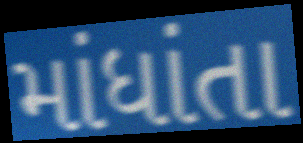
માંધાંતા